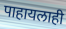
पाहायलाही